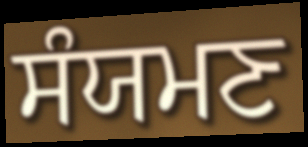
ਸੰਯਮਣ